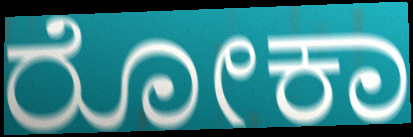
ರೋಕಾ